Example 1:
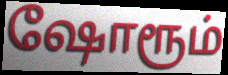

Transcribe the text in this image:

ஷோரூம்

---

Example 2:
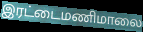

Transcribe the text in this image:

இரட்டைமணிமாலை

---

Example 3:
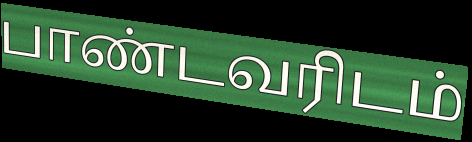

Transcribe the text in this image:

பாண்டவரிடம்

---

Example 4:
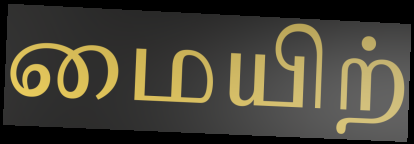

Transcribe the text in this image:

மையிற்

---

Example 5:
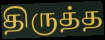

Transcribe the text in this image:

திருத்த